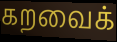
கறவைக்